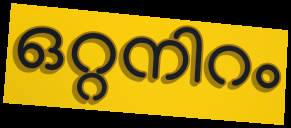
ഒറ്റനിറം